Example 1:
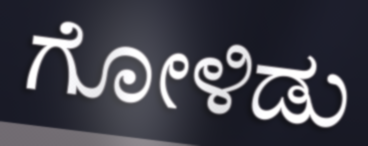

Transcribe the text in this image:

ಗೋಳಿಡು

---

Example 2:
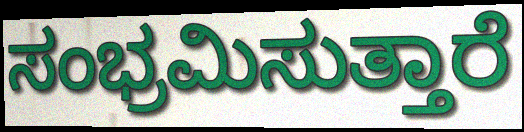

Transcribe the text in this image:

ಸಂಭ್ರಮಿಸುತ್ತಾರೆ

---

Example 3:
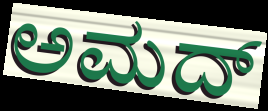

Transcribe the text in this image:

ಅಮದ್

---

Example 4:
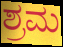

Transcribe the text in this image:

ಶ್ರಮ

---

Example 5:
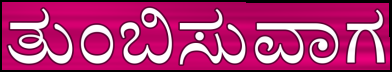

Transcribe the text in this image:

ತುಂಬಿಸುವಾಗ